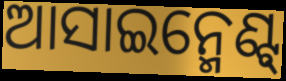
ଆସାଇନ୍ମେଣ୍ଟ୍